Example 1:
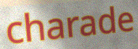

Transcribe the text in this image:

charade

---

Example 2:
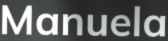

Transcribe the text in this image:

Manuela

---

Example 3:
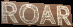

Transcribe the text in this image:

ROAR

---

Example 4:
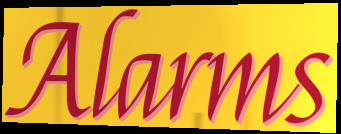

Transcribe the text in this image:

Alarms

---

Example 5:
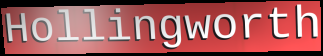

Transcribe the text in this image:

Hollingworth